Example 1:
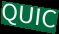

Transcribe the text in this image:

QUIC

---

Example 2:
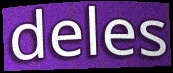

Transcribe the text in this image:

deles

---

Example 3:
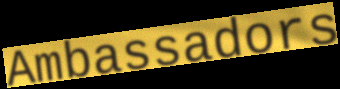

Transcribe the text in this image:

Ambassadors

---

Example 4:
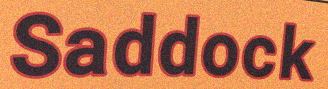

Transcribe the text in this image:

Saddock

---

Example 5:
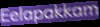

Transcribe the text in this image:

Eelapakkam